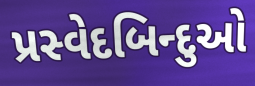
પ્રસ્વેદબિન્દુઓ